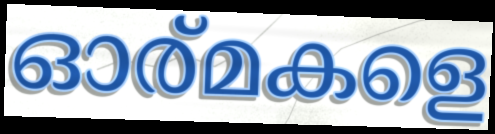
ഓര്മകളെ